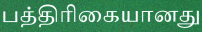
பத்திரிகையானது